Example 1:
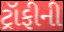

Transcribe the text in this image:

ટ્રૉફીની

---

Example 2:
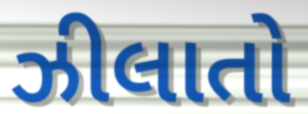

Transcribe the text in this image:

ઝીલાતો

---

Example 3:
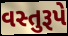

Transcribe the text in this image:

વસ્તુરૂપે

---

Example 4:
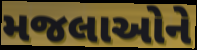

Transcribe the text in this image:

મજલાઓને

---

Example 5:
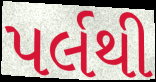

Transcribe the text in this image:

પર્લથી